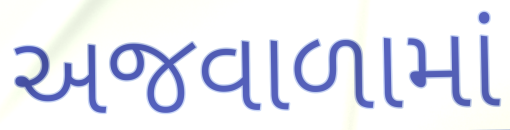
અજવાળામાં